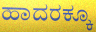
ಹಾದರಕ್ಕೂ